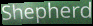
Shepherd